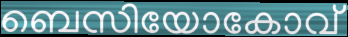
ബെസിയോകോവ്